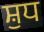
ਸ਼ੁਧ